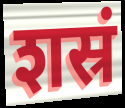
शस्रं